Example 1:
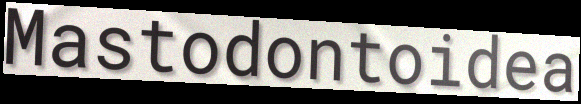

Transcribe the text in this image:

Mastodontoidea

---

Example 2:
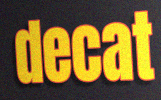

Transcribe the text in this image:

decat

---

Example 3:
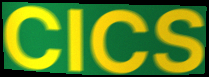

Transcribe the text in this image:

CICS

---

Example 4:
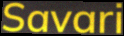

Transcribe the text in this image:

Savari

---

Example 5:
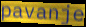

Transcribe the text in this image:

pavanje